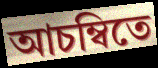
আচম্বিতে